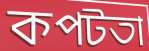
কপটতা